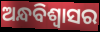
ଅନ୍ଧବିଶ୍ୱାସର